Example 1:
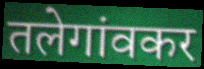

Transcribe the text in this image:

तलेगांवकर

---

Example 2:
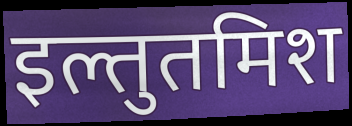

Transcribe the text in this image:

इल्तुतमिश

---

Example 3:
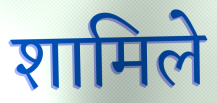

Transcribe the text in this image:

शामिले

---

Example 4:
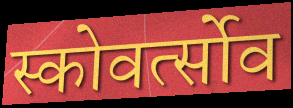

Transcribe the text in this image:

स्कोवर्त्सोव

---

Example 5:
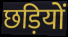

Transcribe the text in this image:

छड़ियों